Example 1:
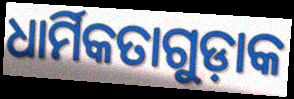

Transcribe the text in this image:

ଧାର୍ମିକତାଗୁଡ଼ାକ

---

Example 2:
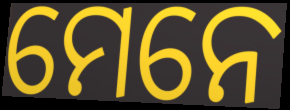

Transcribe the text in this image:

ମେନେ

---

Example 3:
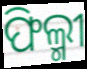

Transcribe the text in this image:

ଫିଲ୍ମୀ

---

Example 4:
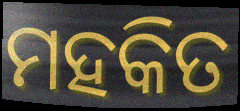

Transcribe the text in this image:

ମହକିତ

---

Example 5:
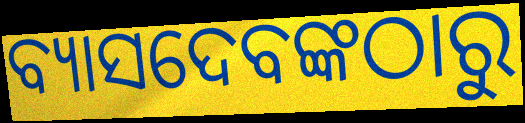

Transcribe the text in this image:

ବ୍ୟାସଦେବଙ୍କଠାରୁ